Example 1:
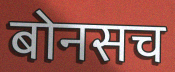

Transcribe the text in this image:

बोनसच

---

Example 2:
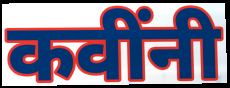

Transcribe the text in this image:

कवींनी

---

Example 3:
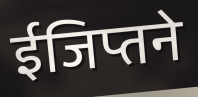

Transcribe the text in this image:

ईजिप्तने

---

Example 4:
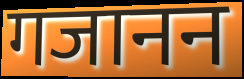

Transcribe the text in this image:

गजानन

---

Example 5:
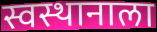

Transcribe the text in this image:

स्वस्थानाला